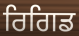
ਰਿਗਿਡ